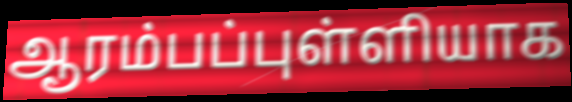
ஆரம்பப்புள்ளியாக